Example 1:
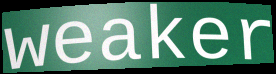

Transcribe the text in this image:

weaker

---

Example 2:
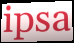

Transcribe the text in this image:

ipsa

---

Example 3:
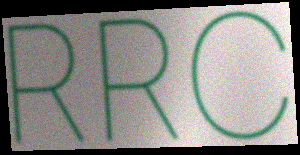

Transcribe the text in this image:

RRC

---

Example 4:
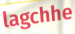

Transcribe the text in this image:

lagchhe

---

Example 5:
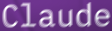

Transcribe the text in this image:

Claude